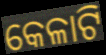
କେଳାଟି